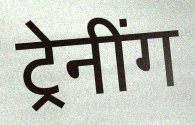
ट्रेनींग